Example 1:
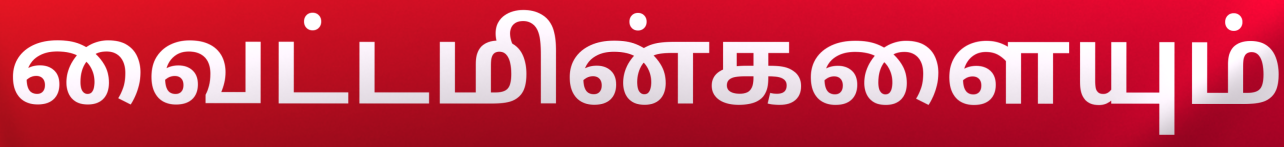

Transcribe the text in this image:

வைட்டமின்களையும்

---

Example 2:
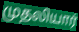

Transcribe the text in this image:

முதலியார்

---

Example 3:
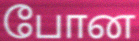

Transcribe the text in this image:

போன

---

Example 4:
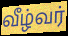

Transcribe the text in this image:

வீழ்வர்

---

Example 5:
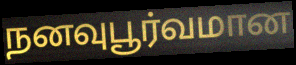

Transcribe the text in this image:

நனவுபூர்வமான